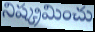
నిష్క్రమించు